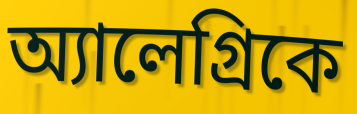
অ্যালেগ্রিকে